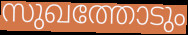
സുഖത്തോടും